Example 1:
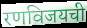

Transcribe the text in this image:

रणविजयची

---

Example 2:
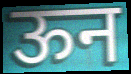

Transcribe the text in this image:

ऊन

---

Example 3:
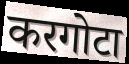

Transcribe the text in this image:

करगोटा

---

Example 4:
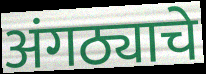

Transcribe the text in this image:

अंगठ्याचे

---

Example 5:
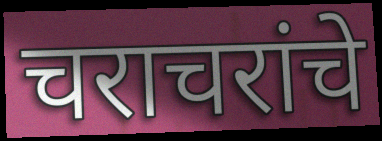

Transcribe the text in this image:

चराचरांचे